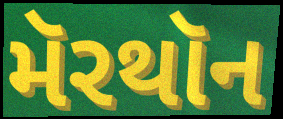
મૅરથૉન